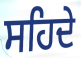
ਸਹਿਦੇ